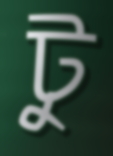
টু